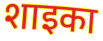
शाइका